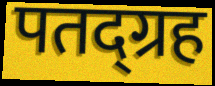
पतद्ग्रह